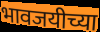
भावजयीच्या